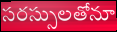
సరస్సులతోనూ